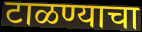
टाळण्याचा